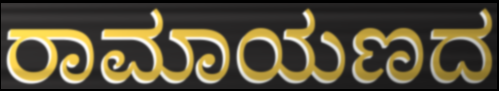
ರಾಮಾಯಣದ